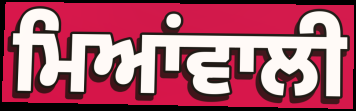
ਮਿਆਂਵਾਲੀ